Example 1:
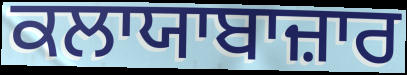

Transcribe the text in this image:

ਕਲਾਯਾਬਾਜ਼ਾਰ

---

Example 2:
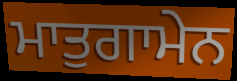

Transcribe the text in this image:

ਮਾਤੁਗਾਮੇਨ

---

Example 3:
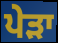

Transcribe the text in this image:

ਪੇੜਾ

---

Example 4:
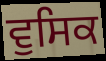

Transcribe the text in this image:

ਵੁਸਿਕ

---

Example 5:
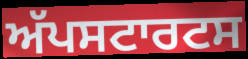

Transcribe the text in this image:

ਅੱਪਸਟਾਰਟਸ